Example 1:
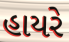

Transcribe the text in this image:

હાયરે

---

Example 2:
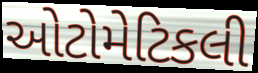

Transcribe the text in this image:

ઓટોમેટિકલી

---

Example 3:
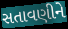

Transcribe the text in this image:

સતાવણીને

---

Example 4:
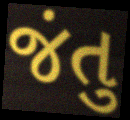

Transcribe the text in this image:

જંતુ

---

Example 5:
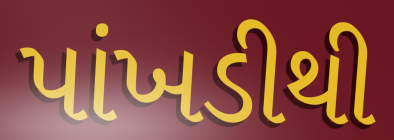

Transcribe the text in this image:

પાંખડીથી